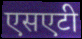
एसएटी